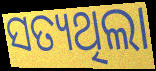
ସତ୍ୟଥିଲା